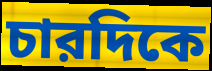
চারদিকে